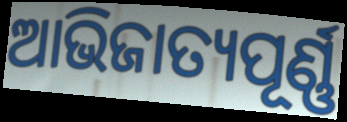
ଆଭିଜାତ୍ୟପୂର୍ଣ୍ଣ